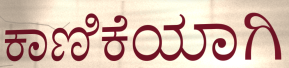
ಕಾಣಿಕೆಯಾಗಿ